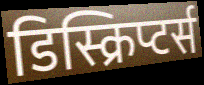
डिस्क्रिप्टर्स